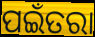
ପଇଁତରା